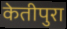
केतीपुरा